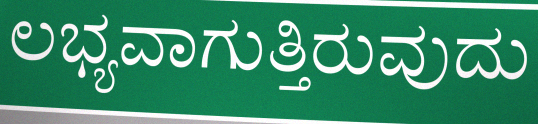
ಲಭ್ಯವಾಗುತ್ತಿರುವುದು